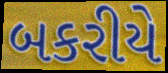
બકરીયે